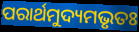
ପରାର୍ଥମୁଦ୍ୟମଭୃତଃ